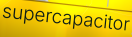
supercapacitor